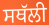
ਸਥੱਲੀ